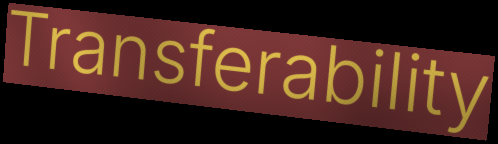
Transferability